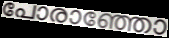
പോരാഞ്ഞോ